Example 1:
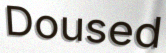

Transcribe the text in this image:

Doused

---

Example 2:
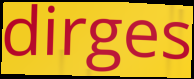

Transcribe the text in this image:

dirges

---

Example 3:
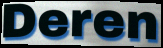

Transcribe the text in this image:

Deren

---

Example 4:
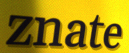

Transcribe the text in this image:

znate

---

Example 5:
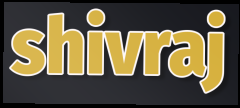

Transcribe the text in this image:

shivraj